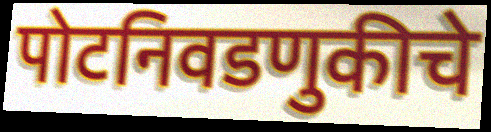
पोटनिवडणुकीचे